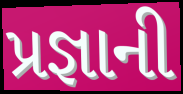
પ્રજ્ઞાની